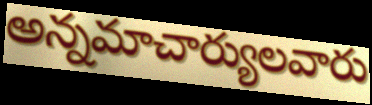
అన్నమాచార్యులవారు